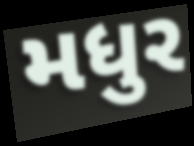
મધુર